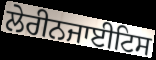
ਲੇਰੀਨਜਾਈਟਿਸ